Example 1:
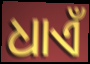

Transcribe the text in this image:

ଧାଏଁ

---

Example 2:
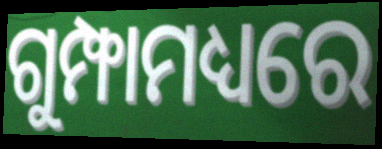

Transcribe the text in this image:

ଗୁମ୍ଫାମଧ୍ୟରେ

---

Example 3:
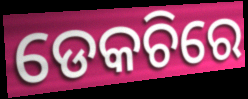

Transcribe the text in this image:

ଡେକଚିରେ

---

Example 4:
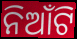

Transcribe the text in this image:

ନିଆଁଟି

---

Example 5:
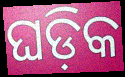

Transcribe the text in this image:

ଘଡ଼ିକ